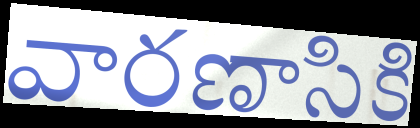
వారణాసికి